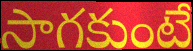
సాగకుంటే